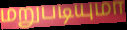
மறுபடியுமா